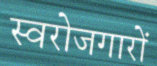
स्वरोजगारों